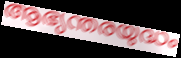
ആഭ്യന്തരയുദ്ധം